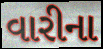
વારીના